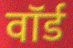
वॉर्ड